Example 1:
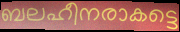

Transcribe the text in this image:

ബലഹീനരാകട്ടെ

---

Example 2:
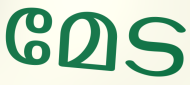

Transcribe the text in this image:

മേട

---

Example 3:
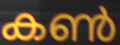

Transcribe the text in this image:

കൺ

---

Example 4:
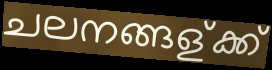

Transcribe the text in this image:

ചലനങ്ങള്ക്ക്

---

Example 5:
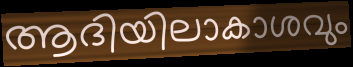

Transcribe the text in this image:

ആദിയിലാകാശവും